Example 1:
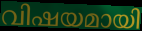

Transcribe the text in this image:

വിഷയമായി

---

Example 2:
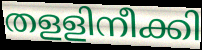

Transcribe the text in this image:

തളളിനീക്കി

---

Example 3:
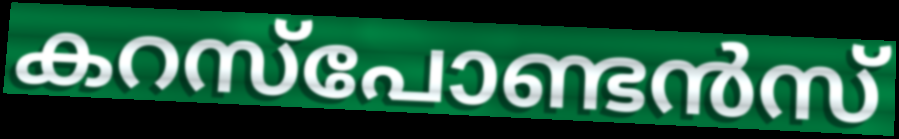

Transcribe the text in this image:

കറസ്പോണ്ടൻസ്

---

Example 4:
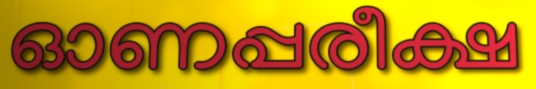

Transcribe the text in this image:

ഓണപ്പരീക്ഷ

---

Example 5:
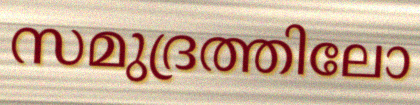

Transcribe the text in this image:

സമുദ്രത്തിലോ